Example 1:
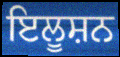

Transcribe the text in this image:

ਇਲੂਸ਼ਨ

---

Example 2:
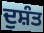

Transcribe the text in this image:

ਦੁਸ਼ੰਤ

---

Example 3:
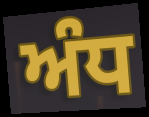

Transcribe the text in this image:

ਅੰਧ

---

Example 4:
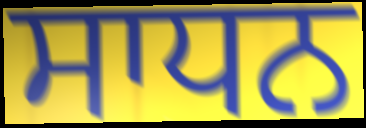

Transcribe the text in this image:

ਸਾਧਨ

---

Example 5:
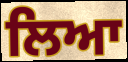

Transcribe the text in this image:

ਲਿਆ